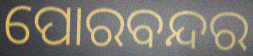
ପୋରବନ୍ଦର